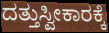
ದತ್ತುಸ್ವೀಕಾರಕ್ಕೆ